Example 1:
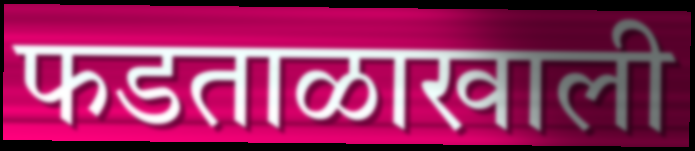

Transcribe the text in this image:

फडताळाखाली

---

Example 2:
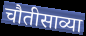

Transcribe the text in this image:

चौतीसाव्या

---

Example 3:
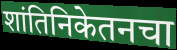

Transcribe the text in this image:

शांतिनिकेतनचा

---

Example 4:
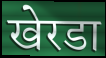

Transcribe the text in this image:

खेरडा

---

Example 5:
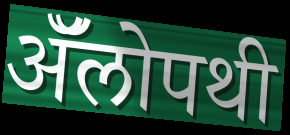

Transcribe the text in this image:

ॲॅलोपथी